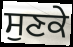
ਸੁਣਕੇ